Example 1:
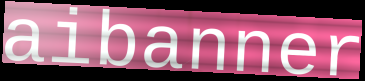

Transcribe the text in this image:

aibanner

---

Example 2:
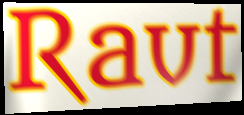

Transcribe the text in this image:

Raut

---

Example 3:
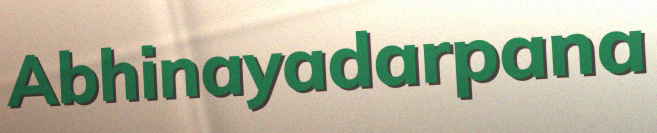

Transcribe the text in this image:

Abhinayadarpana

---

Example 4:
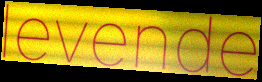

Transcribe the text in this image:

levende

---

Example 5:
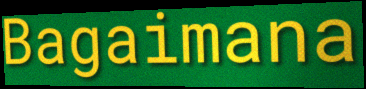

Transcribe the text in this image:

Bagaimana